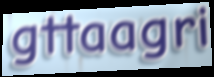
gttaagri